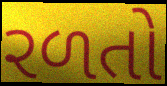
રળતો